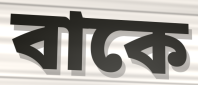
বাকে